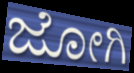
ಜೋಗಿ